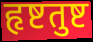
हृष्टतुष्ट